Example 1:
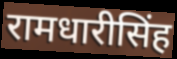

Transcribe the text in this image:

रामधारीसिंह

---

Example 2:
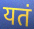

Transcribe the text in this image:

यतं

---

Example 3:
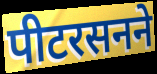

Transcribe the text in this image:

पीटरसनने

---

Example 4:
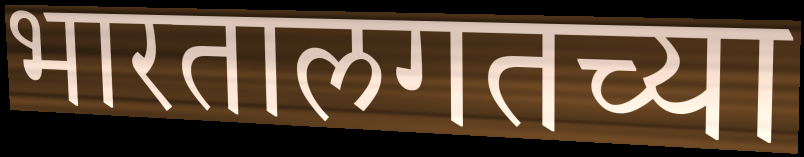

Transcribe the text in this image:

भारतालगतच्या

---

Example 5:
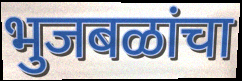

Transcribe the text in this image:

भुजबळांचा